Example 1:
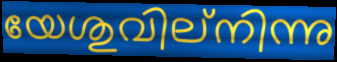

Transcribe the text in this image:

യേശുവില്നിന്നു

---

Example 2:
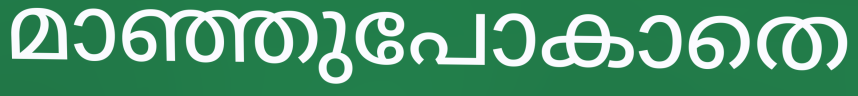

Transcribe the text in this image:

മാഞ്ഞുപോകാതെ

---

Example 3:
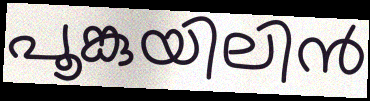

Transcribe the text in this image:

പൂങ്കുയിലിൻ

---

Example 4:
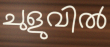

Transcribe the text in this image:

ചുളുവിൽ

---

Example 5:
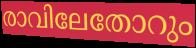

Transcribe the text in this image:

രാവിലേതോറും